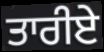
ਤਾਰੀਏ